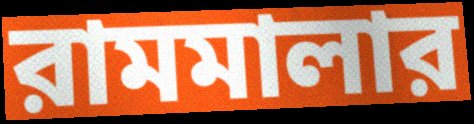
রামমালার